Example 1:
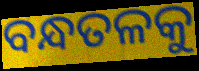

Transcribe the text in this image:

ବନ୍ଧତଳକୁ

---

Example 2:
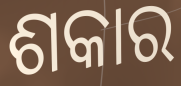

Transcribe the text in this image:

ଶକାର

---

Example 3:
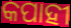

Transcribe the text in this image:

କପାହୀ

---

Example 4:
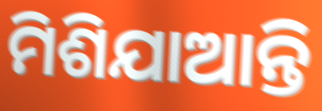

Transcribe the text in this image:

ମିଶିଯାଆନ୍ତି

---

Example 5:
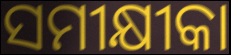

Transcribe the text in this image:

ସମୀକ୍ଷୀକା